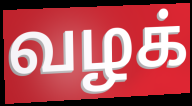
வழக்